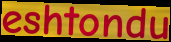
eshtondu